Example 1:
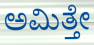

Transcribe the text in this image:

ಅಮಿತ್ತೇ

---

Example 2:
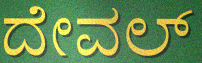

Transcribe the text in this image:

ದೇವಲ್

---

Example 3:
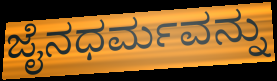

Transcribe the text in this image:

ಜೈನಧರ್ಮವನ್ನು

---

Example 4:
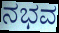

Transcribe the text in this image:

ನಭವ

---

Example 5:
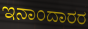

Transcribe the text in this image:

ಇನಾಂದಾರರ